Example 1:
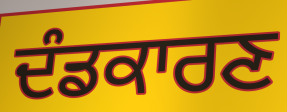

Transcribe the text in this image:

ਦੰਡਕਾਰਣ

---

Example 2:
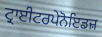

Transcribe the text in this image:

ਟ੍ਰਾਈਟਰਪੇਨੋਇਡਜ਼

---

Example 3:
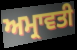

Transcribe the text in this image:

ਅਮ੍ਰਾਵਤੀ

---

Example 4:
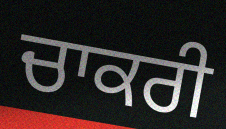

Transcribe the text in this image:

ਚਾਕਰੀ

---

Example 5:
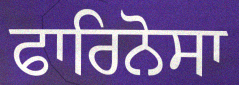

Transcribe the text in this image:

ਫਾਰਿਨੋਸਾ